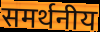
समर्थनीय